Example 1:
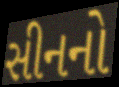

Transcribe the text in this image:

સીનનો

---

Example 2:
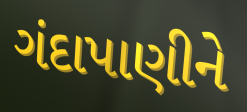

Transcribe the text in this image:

ગંદાપાણીને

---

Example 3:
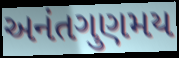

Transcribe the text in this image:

અનંતગુણમય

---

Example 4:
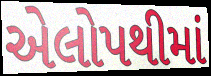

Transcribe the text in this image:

એલોપથીમાં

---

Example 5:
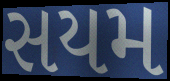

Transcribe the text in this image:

સયમ